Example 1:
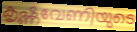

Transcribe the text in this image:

കൃഷ്ണവേണിയുടെ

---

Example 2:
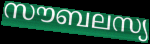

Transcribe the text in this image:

സൗബലസ്യ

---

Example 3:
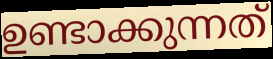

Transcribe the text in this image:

ഉണ്ടാക്കുന്നത്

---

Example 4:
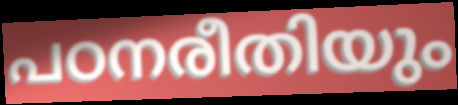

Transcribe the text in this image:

പഠനരീതിയും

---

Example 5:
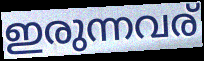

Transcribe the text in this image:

ഇരുന്നവര്